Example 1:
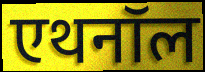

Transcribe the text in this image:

एथनॉल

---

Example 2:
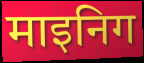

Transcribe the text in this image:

माइनिग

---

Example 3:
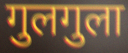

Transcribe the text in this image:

गुलगुला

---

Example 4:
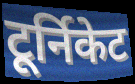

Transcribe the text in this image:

टूर्निकेट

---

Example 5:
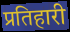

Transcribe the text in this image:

प्रतिहारी